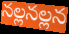
నల్లనల్లన